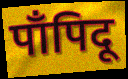
पाँपिदू